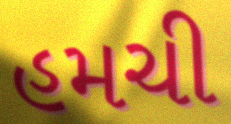
હમચી